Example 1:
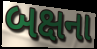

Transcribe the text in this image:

બક્ષના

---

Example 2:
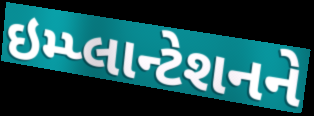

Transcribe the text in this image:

ઇમ્પ્લાન્ટેશનને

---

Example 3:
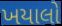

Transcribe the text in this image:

ખયાલો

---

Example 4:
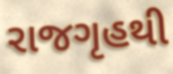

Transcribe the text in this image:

રાજગૃહથી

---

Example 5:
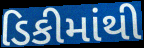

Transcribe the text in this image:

ડિકીમાંથી